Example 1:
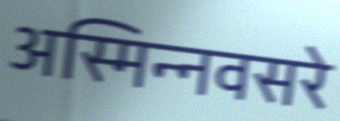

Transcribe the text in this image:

अस्मिन्नवसरे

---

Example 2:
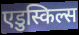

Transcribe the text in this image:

एडुस्किल्स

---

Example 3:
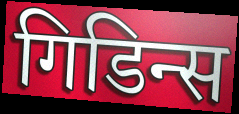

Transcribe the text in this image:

गिडिन्स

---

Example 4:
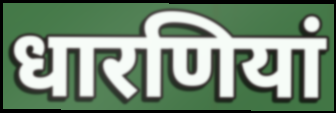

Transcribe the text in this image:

धारणियां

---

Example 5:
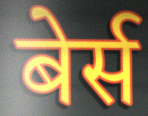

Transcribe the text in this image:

बेर्स